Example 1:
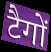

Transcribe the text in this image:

टैगों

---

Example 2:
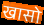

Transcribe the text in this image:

खासो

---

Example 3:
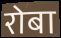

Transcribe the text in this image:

रोबा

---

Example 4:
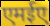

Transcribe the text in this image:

एमईए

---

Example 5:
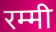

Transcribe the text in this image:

रम्मी